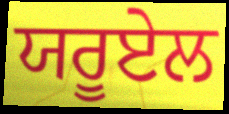
ਯਰੂਏਲ